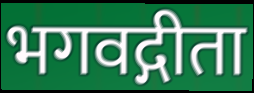
भगवद्गीता